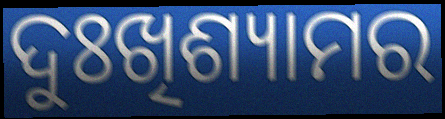
ଦୁଃଖିଶ୍ୟାମର